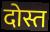
दोस्त